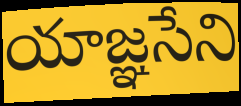
యాజ్ఞసేని